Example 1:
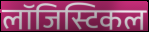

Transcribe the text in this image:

लॉजिस्टिकल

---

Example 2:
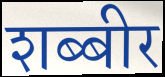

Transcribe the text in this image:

शब्बीर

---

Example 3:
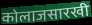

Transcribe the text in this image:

कोलाजसारखी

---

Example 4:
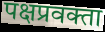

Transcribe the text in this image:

पक्षप्रवक्ता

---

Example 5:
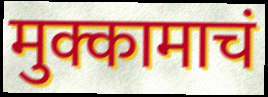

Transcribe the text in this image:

मुक्कामाचं